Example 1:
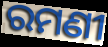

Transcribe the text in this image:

ରମଣୀ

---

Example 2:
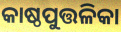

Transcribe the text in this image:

କାଷ୍ଠପୁତ୍ତଳିକା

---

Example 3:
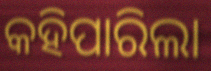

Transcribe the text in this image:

କହିପାରିଲା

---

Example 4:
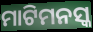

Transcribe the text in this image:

ମାଟିମନସ୍କ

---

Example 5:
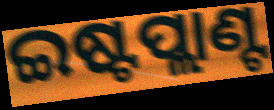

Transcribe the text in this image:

ଇଷ୍ଟପ୍ଲାଣ୍ଟ